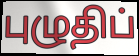
புழுதிப்